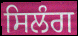
ਸਿਲੰਗ